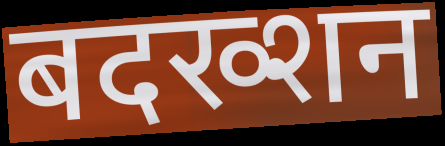
बदख्शन